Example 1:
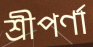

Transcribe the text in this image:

শ্রীপর্ণা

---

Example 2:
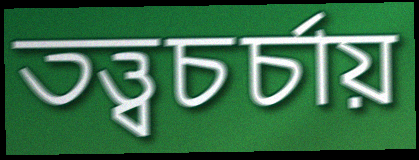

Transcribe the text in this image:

তত্ত্বচর্চায়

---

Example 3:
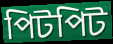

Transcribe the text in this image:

পিটপিট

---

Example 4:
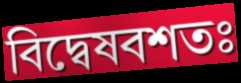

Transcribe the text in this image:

বিদ্বেষবশতঃ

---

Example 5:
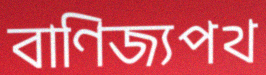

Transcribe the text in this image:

বাণিজ্যপথ